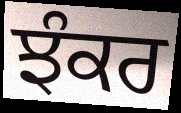
ਝੰਕਰ